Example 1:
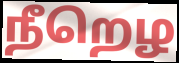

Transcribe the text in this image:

நீறெழ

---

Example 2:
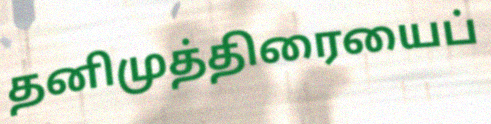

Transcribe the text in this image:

தனிமுத்திரையைப்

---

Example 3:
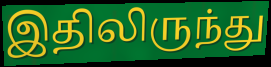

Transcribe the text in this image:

இதிலிருந்து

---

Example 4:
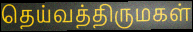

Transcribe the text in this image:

தெய்வத்திருமகள்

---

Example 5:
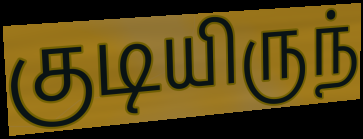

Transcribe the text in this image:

குடியிருந்